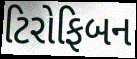
ટિરોફિબન